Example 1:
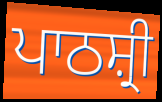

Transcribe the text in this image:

ਪਾਠਸ਼੍ਰੀ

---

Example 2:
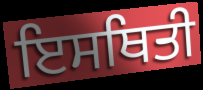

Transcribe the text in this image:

ਇਸਥਿਤੀ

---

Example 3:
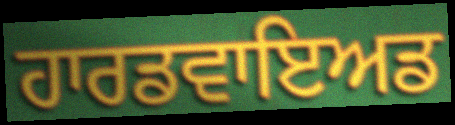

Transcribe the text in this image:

ਹਾਰਡਵਾਇਅਡ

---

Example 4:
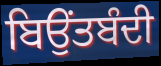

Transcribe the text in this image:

ਬਿਉਂਤਬੰਦੀ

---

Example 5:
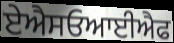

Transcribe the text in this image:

ਏਐਸਓਆਈਐਫ